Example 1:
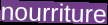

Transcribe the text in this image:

nourriture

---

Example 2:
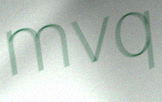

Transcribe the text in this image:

mvq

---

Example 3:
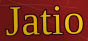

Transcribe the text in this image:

Jatio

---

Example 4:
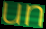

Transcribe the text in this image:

un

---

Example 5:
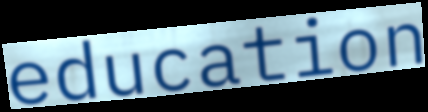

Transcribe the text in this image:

education